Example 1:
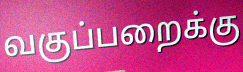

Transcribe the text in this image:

வகுப்பறைக்கு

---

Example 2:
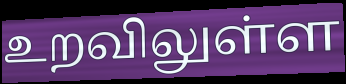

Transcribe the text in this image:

உறவிலுள்ள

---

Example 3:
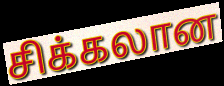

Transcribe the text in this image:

சிக்கலான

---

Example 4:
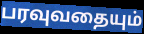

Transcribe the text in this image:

பரவுவதையும்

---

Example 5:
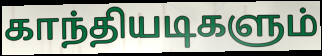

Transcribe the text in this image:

காந்தியடிகளும்